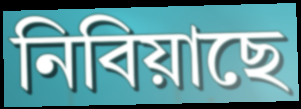
নিবিয়াছে